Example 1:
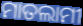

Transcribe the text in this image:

ମାତଲାମୀ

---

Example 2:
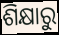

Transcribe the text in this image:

ଶିକ୍ଷାରୁ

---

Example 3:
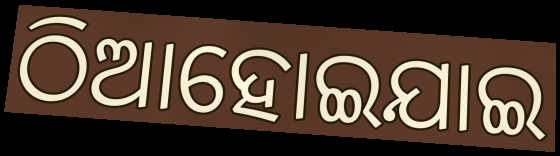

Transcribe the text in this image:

ଠିଆହୋଇଯାଇ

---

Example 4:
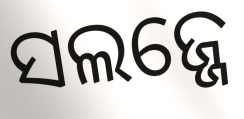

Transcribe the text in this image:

ସଲଜ୍ଜେ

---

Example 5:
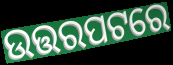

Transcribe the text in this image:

ଉତ୍ତରପଟରେ